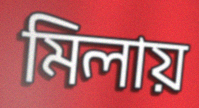
মিলায়